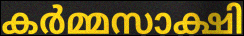
കർമ്മസാക്ഷി